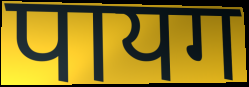
पायग